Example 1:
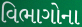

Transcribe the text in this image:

વિભાગોના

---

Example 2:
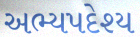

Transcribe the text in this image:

અભ્યપદેશ્ય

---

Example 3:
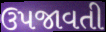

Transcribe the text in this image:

ઉપજાવતી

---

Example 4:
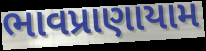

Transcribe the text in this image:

ભાવપ્રાણાયામ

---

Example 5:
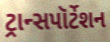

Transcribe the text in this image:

ટ્રાન્સપૉર્ટેશન